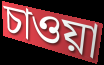
চাওয়া